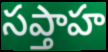
సప్తాహ